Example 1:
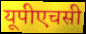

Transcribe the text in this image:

यूपीएचसी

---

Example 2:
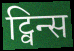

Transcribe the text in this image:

ट्विन्स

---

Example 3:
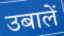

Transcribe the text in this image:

उबालें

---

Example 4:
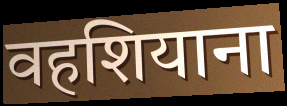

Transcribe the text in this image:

वहशियाना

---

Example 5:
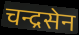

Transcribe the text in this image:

चन्द्रसेन